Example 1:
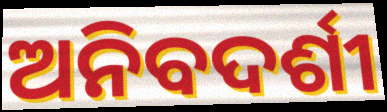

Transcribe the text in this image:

ଅନିବଦର୍ଶୀ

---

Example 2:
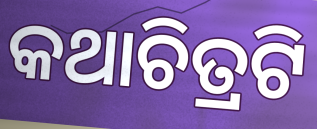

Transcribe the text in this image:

କଥାଚିତ୍ରଟି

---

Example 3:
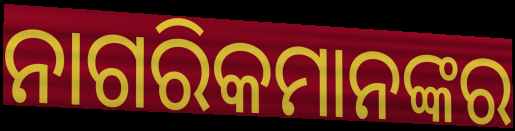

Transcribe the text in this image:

ନାଗରିକମାନଙ୍କର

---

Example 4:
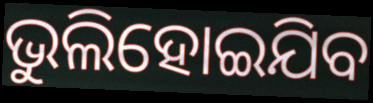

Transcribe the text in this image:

ଭୁଲିହୋଇଯିବ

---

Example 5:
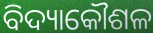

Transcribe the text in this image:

ବିଦ୍ୟାକୌଶଳ